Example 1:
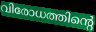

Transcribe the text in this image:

വിരോധത്തിന്റെ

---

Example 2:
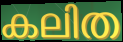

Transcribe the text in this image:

കലിത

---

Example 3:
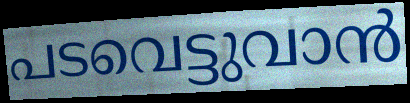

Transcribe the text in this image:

പടവെട്ടുവാൻ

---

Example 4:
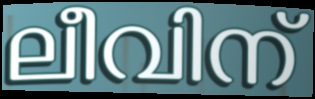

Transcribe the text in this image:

ലീവിന്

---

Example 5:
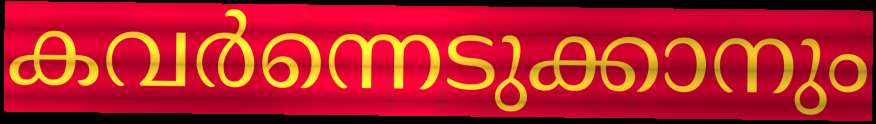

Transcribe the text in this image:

കവർന്നെടുക്കാനും